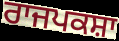
ਰਾਜਪਕਸ਼ਾ